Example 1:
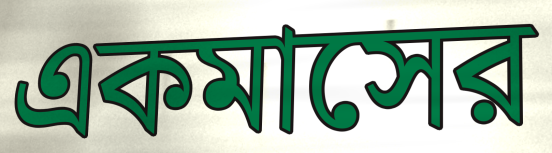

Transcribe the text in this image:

একমাসের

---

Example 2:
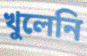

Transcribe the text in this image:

খুলেনি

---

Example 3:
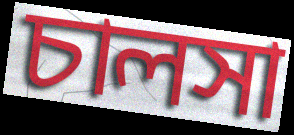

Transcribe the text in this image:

চালসা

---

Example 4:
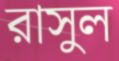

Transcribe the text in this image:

রাসুল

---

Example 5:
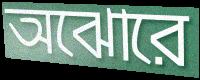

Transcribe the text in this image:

অঝোরে